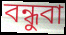
বন্ধুবা